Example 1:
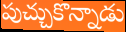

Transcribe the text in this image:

పుచ్చుకొన్నాడు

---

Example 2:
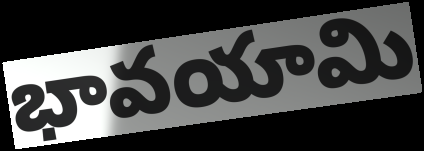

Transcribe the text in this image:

భావయామి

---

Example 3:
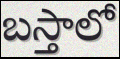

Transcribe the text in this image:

బస్తాలో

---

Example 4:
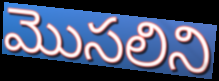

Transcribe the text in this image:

మొసలిని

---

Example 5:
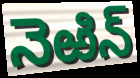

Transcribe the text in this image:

నెఱిన్